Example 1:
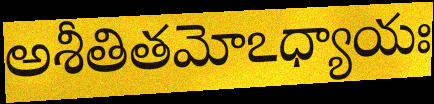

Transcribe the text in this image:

అశీతితమోఽధ్యాయః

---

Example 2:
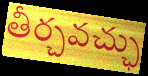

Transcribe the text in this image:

తీర్చవచ్ఛు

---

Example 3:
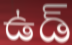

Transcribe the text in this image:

ఉడ్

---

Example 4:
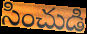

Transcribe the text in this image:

సించుడి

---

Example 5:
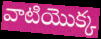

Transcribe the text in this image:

వాటియొక్క